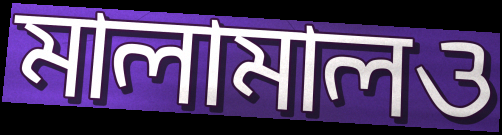
মালামালও